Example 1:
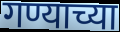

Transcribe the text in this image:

गण्याच्या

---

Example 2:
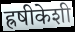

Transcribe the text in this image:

ह्रषीकेशी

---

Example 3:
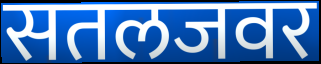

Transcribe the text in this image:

सतलजवर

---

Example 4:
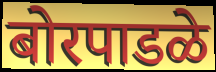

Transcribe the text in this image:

बोरपाडळे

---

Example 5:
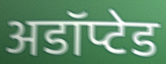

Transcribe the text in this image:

अडॉप्टेड